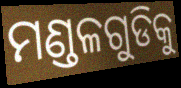
ମଣ୍ଡଳଗୁଡିକୁ